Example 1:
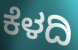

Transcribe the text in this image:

ಕೆಳದಿ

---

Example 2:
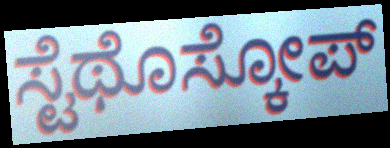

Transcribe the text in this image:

ಸ್ಟೆಥೊಸ್ಕೋಪ್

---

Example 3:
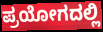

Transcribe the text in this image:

ಪ್ರಯೋಗದಲ್ಲಿ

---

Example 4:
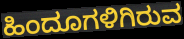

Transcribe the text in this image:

ಹಿಂದೂಗಳಿಗಿರುವ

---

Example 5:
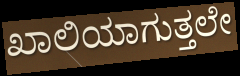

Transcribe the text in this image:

ಖಾಲಿಯಾಗುತ್ತಲೇ